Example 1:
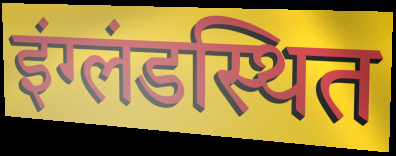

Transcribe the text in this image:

इंग्लंडस्थित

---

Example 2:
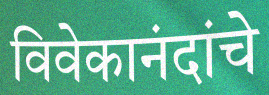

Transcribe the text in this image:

विवेकानंदांचे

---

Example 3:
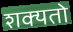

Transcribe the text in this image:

शक्यतो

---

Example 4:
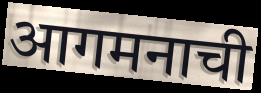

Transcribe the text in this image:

आगमनाची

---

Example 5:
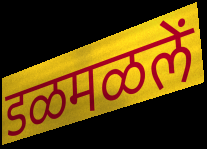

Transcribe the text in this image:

डळमळलें